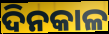
ଦିନକାଳ